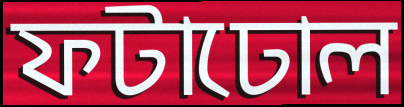
ফটাঢোল